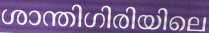
ശാന്തിഗിരിയിലെ